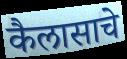
कैलासाचे